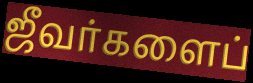
ஜீவர்களைப்